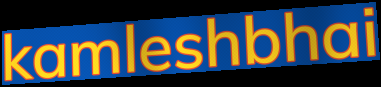
kamleshbhai